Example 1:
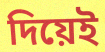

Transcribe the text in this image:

দিয়েই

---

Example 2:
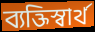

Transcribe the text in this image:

ব্যক্তিস্বার্থ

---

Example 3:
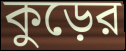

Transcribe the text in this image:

কুড়ের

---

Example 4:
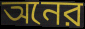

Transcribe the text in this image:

অনের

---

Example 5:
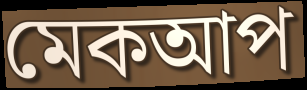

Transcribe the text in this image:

মেকআপ